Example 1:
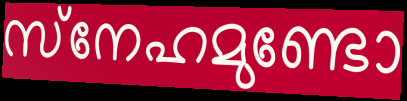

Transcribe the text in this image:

സ്‌നേഹമുണ്ടോ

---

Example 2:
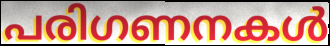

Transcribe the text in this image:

പരിഗണനകൾ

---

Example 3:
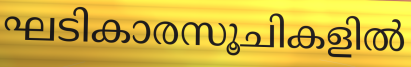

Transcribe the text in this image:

ഘടികാരസൂചികളിൽ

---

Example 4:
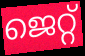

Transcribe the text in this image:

ജെറ്റ്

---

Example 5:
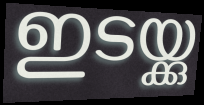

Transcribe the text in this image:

ഇടയ്ക്കു